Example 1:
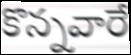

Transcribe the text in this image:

కొన్నవారే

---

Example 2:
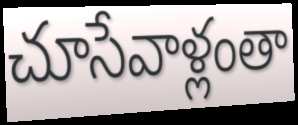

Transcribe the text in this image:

చూసేవాళ్లంతా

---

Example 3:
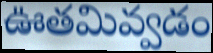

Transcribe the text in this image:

ఊతమివ్వడం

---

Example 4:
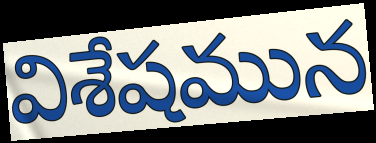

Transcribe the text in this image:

విశేషమున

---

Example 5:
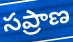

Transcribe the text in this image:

సప్రాణ